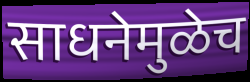
साधनेमुळेच